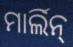
ମାର୍ଲିନ୍